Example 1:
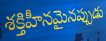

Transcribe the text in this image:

శక్తిహీనమైనప్పుడు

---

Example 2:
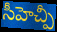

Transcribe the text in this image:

సీహెచ్పీ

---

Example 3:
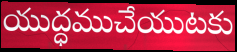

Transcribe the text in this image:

యుద్ధముచేయుటకు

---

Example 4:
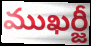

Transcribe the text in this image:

ముఖర్జీ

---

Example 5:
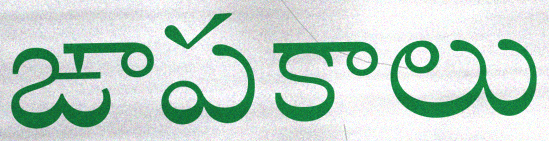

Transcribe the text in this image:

ఙాపకాలు